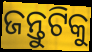
ଜନ୍ତୁଟିକୁ